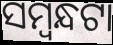
ସମ୍ବନ୍ଧଟା